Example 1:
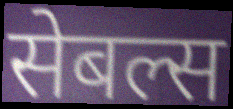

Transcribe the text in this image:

सेबल्स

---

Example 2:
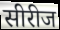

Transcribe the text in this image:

सीरीज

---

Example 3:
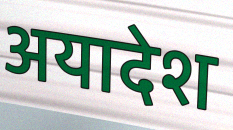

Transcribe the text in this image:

अयादेश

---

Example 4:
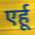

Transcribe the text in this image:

एर्हू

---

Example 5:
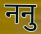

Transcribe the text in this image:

ननु